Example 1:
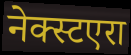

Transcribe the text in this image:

नेक्स्टएरा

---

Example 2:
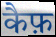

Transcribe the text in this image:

कैफ़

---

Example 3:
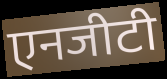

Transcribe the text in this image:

एनजीटी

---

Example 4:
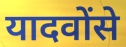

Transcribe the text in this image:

यादवोंसे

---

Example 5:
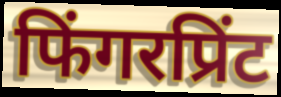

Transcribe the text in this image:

फिंगरप्रिंट